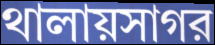
থালায়সাগর